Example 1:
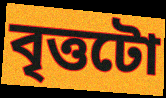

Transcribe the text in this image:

বৃত্তটো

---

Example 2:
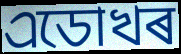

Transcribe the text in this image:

এডোখৰ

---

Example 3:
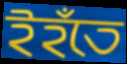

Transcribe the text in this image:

ইহঁতে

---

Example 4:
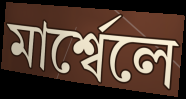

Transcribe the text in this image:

মাৰ্শ্বেলে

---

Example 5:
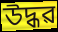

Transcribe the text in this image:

উদ্ধৱ